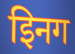
इिनग